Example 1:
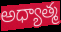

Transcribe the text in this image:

అధ్యాత్మ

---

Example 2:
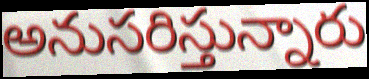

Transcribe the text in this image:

అనుసరిస్తున్నారు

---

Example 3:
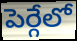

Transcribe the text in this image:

పెర్గేలో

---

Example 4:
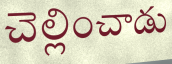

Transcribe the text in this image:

చెల్లించాడు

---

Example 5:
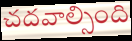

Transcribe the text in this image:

చదవాల్సింది